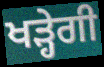
ਖੜ੍ਹੇਗੀ